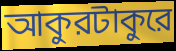
আকুরটাকুরে